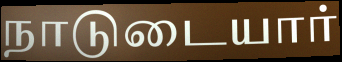
நாடுடையார்